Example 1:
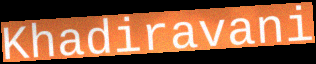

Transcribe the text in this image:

Khadiravani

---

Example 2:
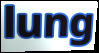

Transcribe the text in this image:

lung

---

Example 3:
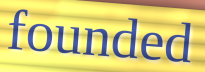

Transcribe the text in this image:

founded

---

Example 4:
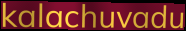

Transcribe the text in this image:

kalachuvadu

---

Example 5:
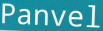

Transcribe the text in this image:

Panvel